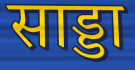
साड्डा